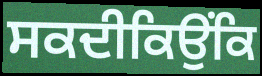
ਸਕਦੀਕਿਉਂਕਿ